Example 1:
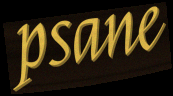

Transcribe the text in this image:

psane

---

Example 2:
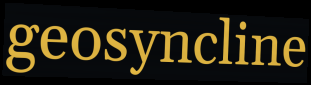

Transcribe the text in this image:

geosyncline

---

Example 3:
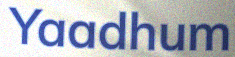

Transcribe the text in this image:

Yaadhum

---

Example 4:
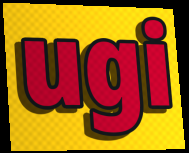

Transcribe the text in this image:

ugi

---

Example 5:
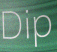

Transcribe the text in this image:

Dip